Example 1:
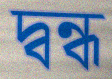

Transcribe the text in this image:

দ্বন্ধ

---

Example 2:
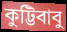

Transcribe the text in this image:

কুট্টিবাবু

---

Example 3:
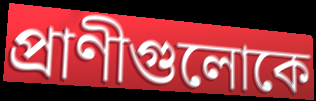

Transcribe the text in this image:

প্রাণীগুলোকে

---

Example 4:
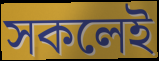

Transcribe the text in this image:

সকলেই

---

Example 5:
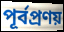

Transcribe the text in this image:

পূর্বপ্রণয়